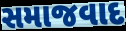
સમાજવાદ